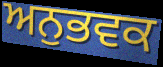
ਅਨੁਭਵਕ